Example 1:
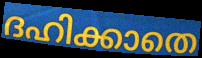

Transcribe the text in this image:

ദഹിക്കാതെ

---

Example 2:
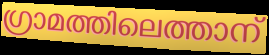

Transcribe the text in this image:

ഗ്രാമത്തിലെത്താന്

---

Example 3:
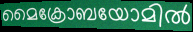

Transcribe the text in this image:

മൈക്രോബയോമിൽ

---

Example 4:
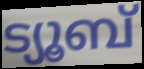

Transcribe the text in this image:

ട്യൂബ്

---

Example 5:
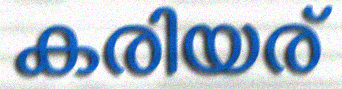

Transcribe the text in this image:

കരിയര്